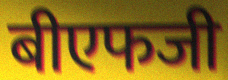
बीएफजी